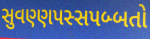
સુવણ્ણપસ્સપબ્બતો